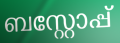
ബസ്റ്റോപ്പ്